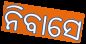
ନିବାସେ